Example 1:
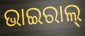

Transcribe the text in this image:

ଭାଇରାଲ୍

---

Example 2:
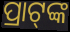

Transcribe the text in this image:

ପ୍ରାଟ୍‍ଙ୍କ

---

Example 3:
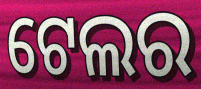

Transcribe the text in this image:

ଟେଲର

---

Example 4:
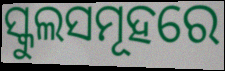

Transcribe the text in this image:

ସ୍କୁଲସମୂହରେ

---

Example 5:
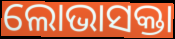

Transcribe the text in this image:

ଲୋଭାସକ୍ତା